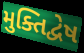
મુક્તિદ્વેષ